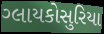
ગ્લાયકોસુરિયા